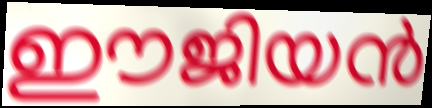
ഈജിയൻ